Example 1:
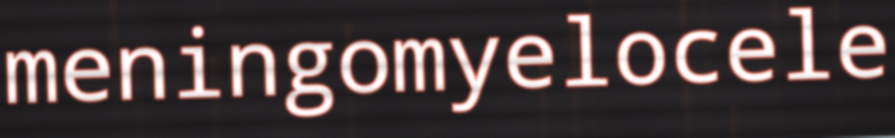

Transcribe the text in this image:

meningomyelocele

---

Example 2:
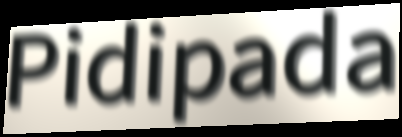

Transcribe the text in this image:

Pidipada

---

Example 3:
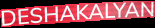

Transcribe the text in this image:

DESHAKALYAN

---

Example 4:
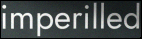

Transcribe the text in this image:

imperilled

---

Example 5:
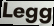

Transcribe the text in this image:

Legg